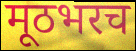
मूठभरच